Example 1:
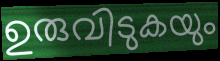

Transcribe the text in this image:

ഉരുവിടുകയും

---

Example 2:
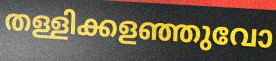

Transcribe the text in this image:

തള്ളിക്കളഞ്ഞുവോ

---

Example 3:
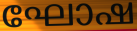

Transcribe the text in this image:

ഘോഷ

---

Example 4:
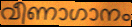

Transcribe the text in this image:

വീണാഗാനം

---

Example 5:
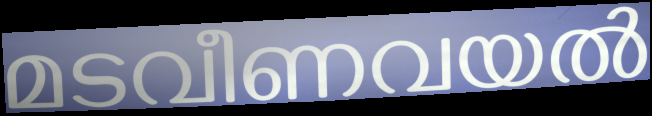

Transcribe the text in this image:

മടവീണവയൽ